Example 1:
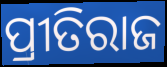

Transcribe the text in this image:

ପ୍ରୀତିରାଜ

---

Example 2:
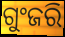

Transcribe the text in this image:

ଗୁଂଜରି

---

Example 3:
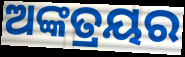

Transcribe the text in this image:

ଅଙ୍କତ୍ରୟର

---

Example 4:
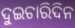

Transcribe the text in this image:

ଦୁଇଚାରିଦିନ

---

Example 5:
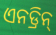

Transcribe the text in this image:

ଏନଡ୍ରିନ୍